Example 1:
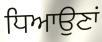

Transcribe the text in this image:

ਧਿਆਉਣਾਂ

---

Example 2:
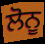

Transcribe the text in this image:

ਲੋਨੂ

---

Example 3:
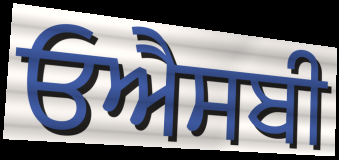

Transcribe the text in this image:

ਓਐਸਬੀ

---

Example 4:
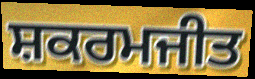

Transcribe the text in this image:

ਸ਼ਕਰਮਜੀਤ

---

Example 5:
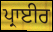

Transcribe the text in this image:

ਪ੍ਰਾਈਰ